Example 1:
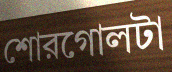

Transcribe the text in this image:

শোরগোলটা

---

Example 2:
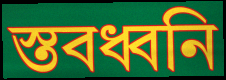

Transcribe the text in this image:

স্তবধ্বনি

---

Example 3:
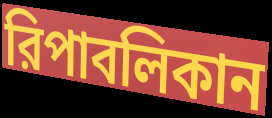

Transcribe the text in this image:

রিপাবলিকান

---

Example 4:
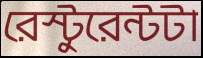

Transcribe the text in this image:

রেস্টুরেন্টটা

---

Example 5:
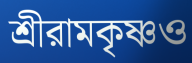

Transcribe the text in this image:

শ্রীরামকৃষ্ণও